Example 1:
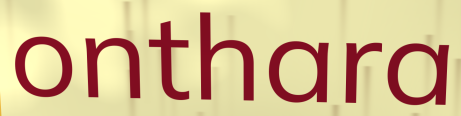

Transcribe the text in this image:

onthara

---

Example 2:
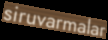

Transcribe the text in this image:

siruvarmalar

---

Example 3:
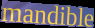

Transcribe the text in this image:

mandible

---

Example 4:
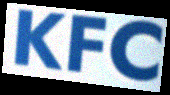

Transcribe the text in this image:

KFC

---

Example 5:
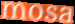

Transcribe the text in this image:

mosa